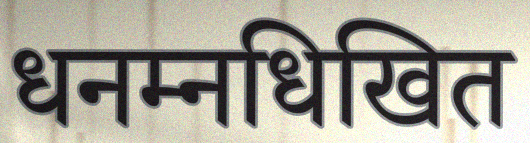
धनम्नधिखित